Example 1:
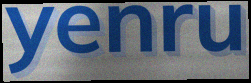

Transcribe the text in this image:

yenru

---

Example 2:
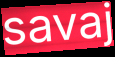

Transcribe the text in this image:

savaj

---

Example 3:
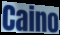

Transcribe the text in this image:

Caino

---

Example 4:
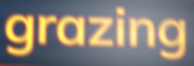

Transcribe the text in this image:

grazing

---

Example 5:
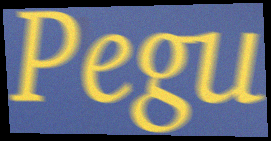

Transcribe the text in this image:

Pegu